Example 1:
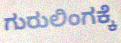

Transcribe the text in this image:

ಗುರುಲಿಂಗಕ್ಕೆ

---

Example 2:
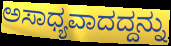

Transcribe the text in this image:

ಅಸಾಧ್ಯವಾದದ್ದನ್ನು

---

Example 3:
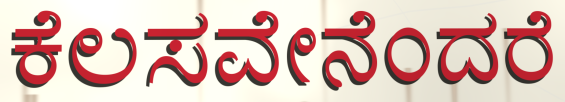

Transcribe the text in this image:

ಕೆಲಸವೇನೆಂದರೆ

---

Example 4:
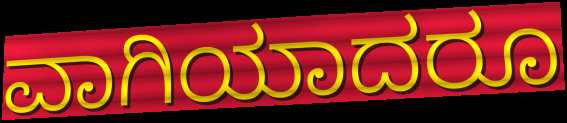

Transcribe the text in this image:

ವಾಗಿಯಾದರೂ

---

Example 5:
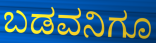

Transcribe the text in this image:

ಬಡವನಿಗೂ